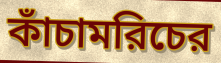
কাঁচামরিচের